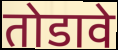
तोडावे